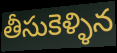
తీసుకెళ్ళిన